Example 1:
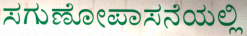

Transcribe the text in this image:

ಸಗುಣೋಪಾಸನೆಯಲ್ಲಿ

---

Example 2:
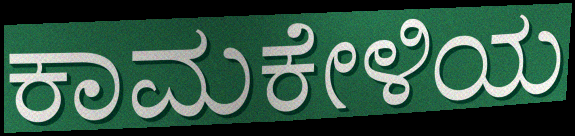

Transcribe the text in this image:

ಕಾಮಕೇಳಿಯ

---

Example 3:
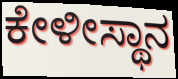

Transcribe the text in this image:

ಕೇಳೀಸ್ಥಾನ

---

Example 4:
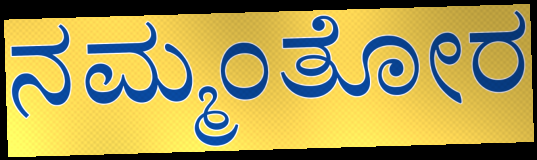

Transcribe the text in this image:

ನಮ್ಮಂತೋರ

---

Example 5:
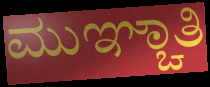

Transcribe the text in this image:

ಮುಞ್ಚಾತಿ